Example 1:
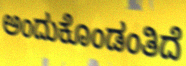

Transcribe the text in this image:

ಅಂದುಕೊಂಡಂತಿದೆ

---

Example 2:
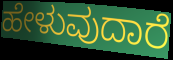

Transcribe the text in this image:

ಹೇಳುವುದಾರೆ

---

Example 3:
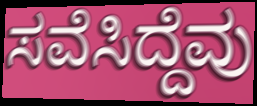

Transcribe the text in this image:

ಸವೆಸಿದ್ದೆವು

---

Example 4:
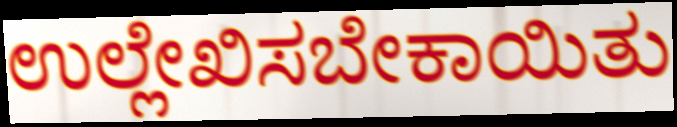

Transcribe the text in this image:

ಉಲ್ಲೇಖಿಸಬೇಕಾಯಿತು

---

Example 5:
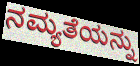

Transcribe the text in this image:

ನಮ್ಯತೆಯನ್ನು